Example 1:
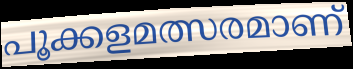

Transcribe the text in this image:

പൂക്കളമത്സരമാണ്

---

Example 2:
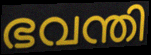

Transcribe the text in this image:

ഭവന്തി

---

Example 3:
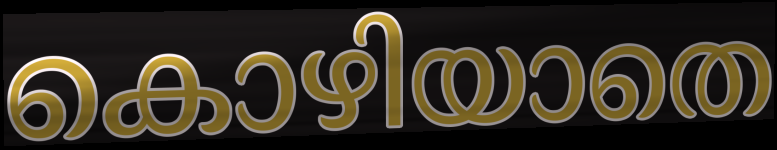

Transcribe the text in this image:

കൊഴിയാതെ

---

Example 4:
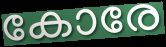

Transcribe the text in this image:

കോരേ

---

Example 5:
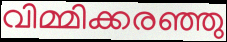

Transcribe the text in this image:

വിമ്മിക്കരഞ്ഞു